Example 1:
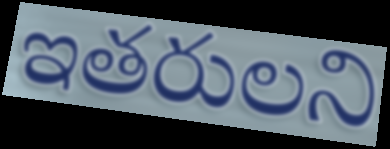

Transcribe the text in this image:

ఇతరులని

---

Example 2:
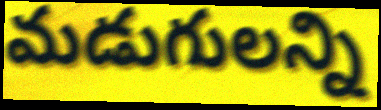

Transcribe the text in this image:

మడుగులన్ని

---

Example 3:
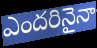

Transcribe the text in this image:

ఎందరినైనా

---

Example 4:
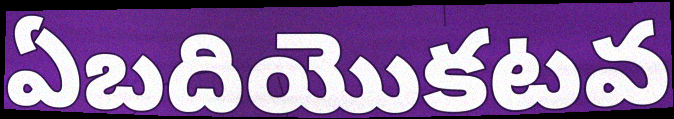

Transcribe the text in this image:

ఏబదియొకటవ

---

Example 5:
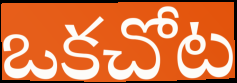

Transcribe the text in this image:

ఒకచోట